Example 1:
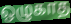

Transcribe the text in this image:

ஒழுகாத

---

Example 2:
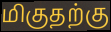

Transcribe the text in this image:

மிகுதற்கு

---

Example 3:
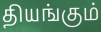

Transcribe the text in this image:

தியங்கும்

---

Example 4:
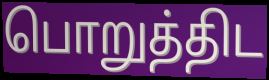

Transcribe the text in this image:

பொறுத்திட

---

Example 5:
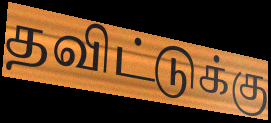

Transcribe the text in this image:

தவிட்டுக்கு